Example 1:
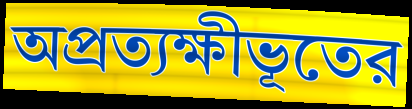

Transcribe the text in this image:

অপ্রত্যক্ষীভূতের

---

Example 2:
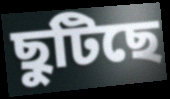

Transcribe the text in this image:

ছুটিছে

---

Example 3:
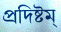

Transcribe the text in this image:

প্রদিষ্টম্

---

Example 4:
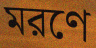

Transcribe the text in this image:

মরণে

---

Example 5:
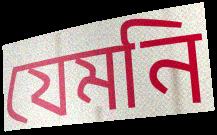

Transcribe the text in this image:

যেমনি